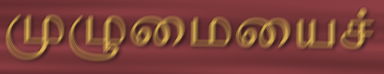
முழுமையைச்